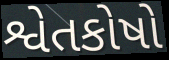
શ્વેતકોષો